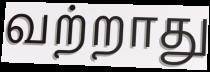
வற்றாது